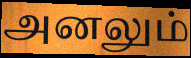
அனலும்